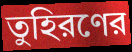
তুহিরণের